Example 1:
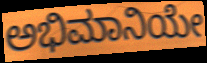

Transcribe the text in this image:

ಅಭಿಮಾನಿಯೇ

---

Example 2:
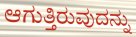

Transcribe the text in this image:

ಆಗುತ್ತಿರುವುದನ್ನು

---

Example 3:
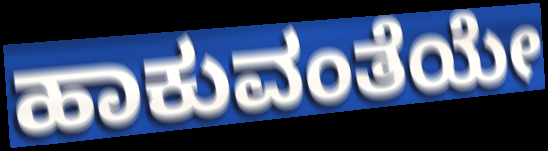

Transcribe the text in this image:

ಹಾಕುವಂತೆಯೇ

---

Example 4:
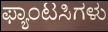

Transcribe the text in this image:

ಫ್ಯಾಂಟಸಿಗಳು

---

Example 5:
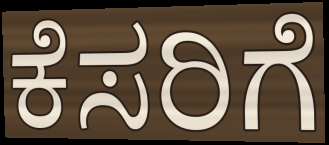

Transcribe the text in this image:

ಕೆಸರಿಗೆ